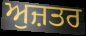
ਅੁਜ਼ਤਰ